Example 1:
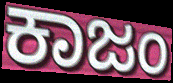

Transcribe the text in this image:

ಕಾಜಂ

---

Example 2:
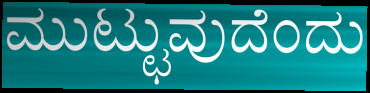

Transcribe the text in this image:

ಮುಟ್ಟುವುದೆಂದು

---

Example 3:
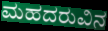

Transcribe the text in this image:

ಮಹದರುವಿನ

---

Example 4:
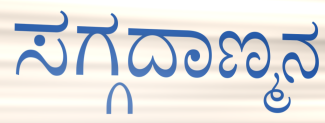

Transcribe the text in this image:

ಸಗ್ಗದಾಣ್ಮನ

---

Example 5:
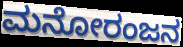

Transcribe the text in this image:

ಮನೋರಂಜನ